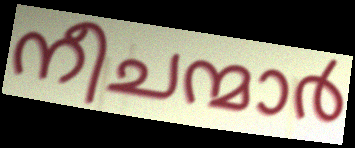
നീചന്മാർ